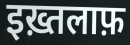
इख़्तलाफ़